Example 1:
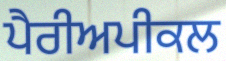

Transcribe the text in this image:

ਪੈਰੀਅਪੀਕਲ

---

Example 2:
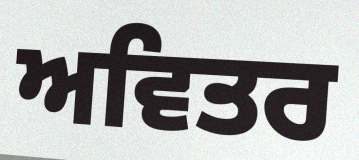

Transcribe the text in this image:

ਅਵਿਤਰ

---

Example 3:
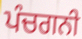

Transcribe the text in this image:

ਪੰਚਗਨੀ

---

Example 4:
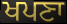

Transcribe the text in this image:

ਖਪਣਾ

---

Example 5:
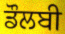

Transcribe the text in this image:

ਡੌਲਬੀ